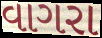
વાગરા